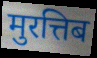
मुरत्तिब